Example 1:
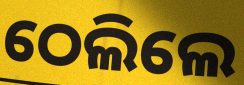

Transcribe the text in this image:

ଠେଲିଲେ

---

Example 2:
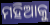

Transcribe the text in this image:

ମହିଆକୁ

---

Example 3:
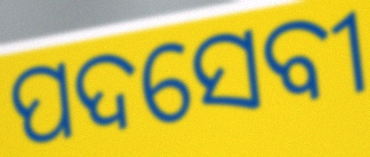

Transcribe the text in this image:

ପଦସେବୀ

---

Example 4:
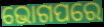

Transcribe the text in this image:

ଭୋଗପରେ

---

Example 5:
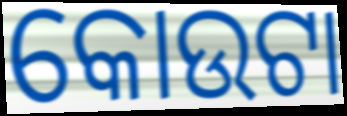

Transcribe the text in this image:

କୋଉଟା